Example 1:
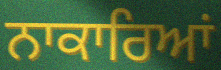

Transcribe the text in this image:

ਨਾਕਾਰਿਆਂ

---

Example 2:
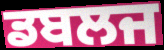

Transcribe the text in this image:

ਡਬਲਜ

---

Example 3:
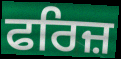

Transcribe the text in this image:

ਫਰਿਜ਼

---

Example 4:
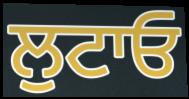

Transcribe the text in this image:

ਲੁਟਾਓ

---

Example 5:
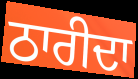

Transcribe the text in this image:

ਠਾਰੀਦਾ